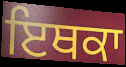
ਇਥਕਾ